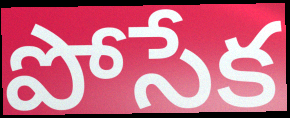
పోసేక